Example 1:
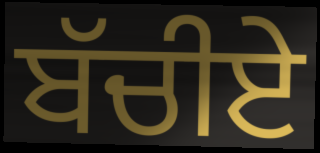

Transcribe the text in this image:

ਬੱਚੀਏ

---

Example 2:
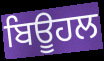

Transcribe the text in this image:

ਬਿਊਹਲ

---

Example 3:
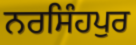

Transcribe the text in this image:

ਨਰਸਿੰਹਪੁਰ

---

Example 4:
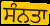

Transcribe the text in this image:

ਸੰਨਤਾ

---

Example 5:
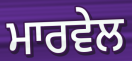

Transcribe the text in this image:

ਮਾਰਵੇਲ